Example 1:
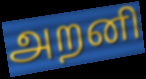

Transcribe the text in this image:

அறனி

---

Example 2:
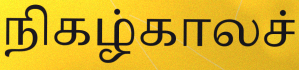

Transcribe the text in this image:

நிகழ்காலச்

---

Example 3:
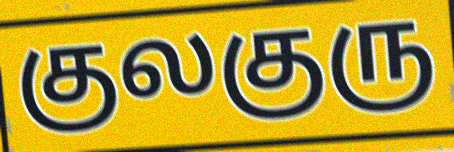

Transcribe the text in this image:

குலகுரு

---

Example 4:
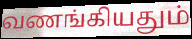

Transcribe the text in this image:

வணங்கியதும்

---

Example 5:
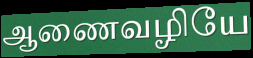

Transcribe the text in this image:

ஆணைவழியே